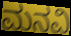
ಮನವಿ